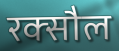
रक्‍सौल